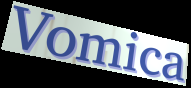
Vomica